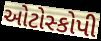
ઓટોસ્કોપી